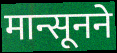
मान्सूनने